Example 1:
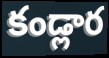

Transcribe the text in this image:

కండ్లార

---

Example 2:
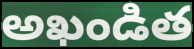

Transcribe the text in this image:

అఖండిత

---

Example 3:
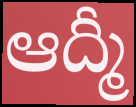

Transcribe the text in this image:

ఆద్మీ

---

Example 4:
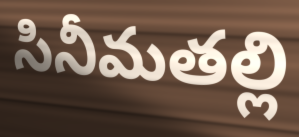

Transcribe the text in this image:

సినీమతల్లి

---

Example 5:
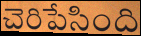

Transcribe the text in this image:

చెరిపేసింది